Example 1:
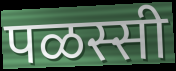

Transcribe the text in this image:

पळस्सी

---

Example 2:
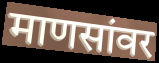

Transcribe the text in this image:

माणसांवर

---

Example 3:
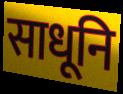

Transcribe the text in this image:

साधूनि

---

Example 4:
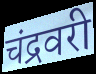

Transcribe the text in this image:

चंद्रवरी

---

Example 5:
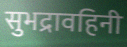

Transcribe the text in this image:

सुभद्रावहिनी